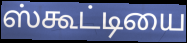
ஸ்கூட்டியை